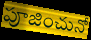
పూజించునో